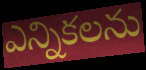
ఎన్నికలను